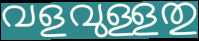
വളവുള്ളതു